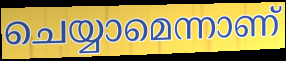
ചെയ്യാമെന്നാണ്